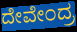
ದೇವೇಂದ್ರ